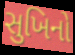
સુખિનો